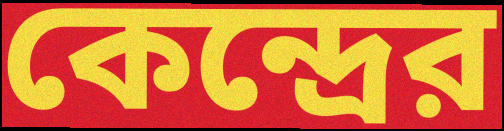
কেন্দ্রের